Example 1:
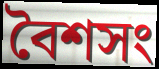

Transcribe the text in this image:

বৈশসং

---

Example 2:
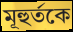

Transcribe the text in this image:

মূহুর্তকে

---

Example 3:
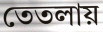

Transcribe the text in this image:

তেতলায়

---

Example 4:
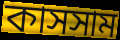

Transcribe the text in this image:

কাসসাম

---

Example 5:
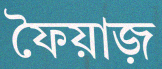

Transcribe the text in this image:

ফৈয়াজ়